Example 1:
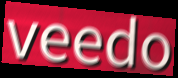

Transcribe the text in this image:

veedo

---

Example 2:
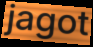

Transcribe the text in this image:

jagot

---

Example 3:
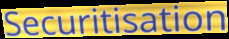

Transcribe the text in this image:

Securitisation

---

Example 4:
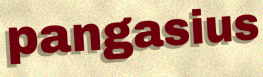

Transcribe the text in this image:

pangasius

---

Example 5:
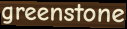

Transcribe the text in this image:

greenstone